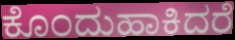
ಕೊಂದುಹಾಕಿದರೆ